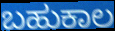
ಬಹುಕಾಲ